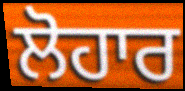
ਲੋਹਾਰ